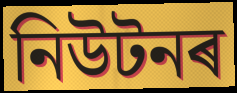
নিউটনৰ